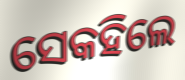
ସେକହିଲେ